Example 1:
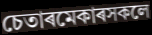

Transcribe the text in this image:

চেতাৰমেকাৰসকলে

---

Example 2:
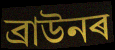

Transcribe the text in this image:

ব্ৰাউনৰ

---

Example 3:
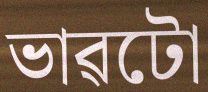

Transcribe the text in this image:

ভাৱটো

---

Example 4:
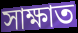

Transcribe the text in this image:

সাক্ষাত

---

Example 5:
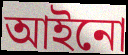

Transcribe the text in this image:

আইনো